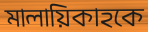
মালায়িকাহকে